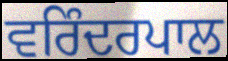
ਵਰਿੰਦਰਪਾਲ